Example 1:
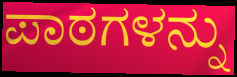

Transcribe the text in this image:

ಪಾಠಗಳನ್ನು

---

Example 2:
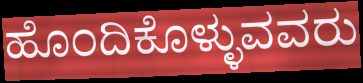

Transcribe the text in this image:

ಹೊಂದಿಕೊಳ್ಳುವವರು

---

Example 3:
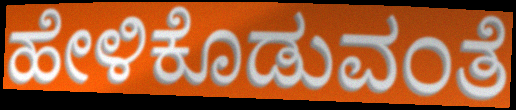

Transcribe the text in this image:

ಹೇಳಿಕೊಡುವಂತೆ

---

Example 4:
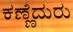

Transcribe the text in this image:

ಕಣ್ಣೆದುರು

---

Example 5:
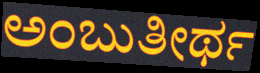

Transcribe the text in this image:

ಅಂಬುತೀರ್ಥ